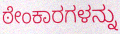
ಠೇಂಕಾರಗಳನ್ನು